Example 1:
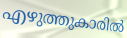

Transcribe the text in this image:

എഴുത്തുകാരിൽ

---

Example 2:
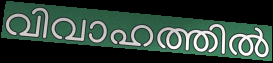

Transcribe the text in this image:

വിവാഹത്തിൽ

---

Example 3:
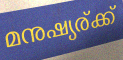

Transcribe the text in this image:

മനുഷ്യര്ക്ക്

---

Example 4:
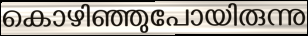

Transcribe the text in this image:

കൊഴിഞ്ഞുപോയിരുന്നു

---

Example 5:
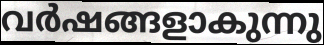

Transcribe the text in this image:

വർഷങ്ങളാകുന്നു